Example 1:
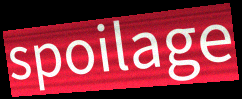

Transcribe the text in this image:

spoilage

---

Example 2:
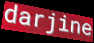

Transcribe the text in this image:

darjine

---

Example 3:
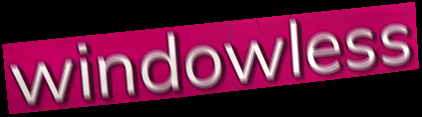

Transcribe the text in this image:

windowless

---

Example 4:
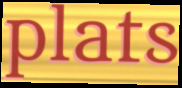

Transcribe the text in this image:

plats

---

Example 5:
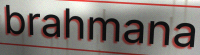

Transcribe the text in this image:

brahmana